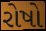
રોષો